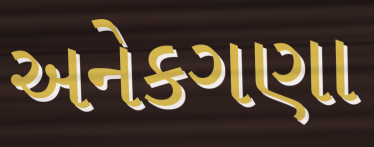
અનેકગણા